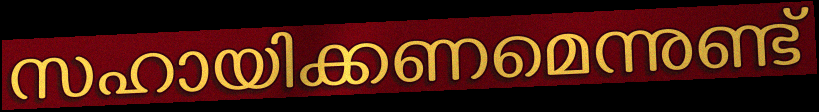
സഹായിക്കണമെന്നുണ്ട്